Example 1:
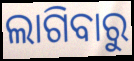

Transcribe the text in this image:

ଲାଗିବାରୁ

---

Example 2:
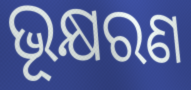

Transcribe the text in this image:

ଭୂକ୍ଷରଣ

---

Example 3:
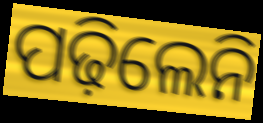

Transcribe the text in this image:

ପଢ଼ିଲେନି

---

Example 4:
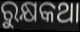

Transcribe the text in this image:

ରୁକ୍ଷକଥା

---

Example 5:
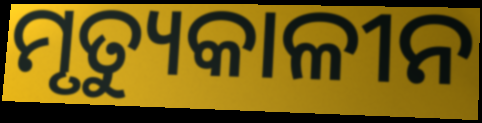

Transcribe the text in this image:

ମୃତ୍ୟୁକାଳୀନ